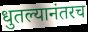
धुतल्यानंतरच